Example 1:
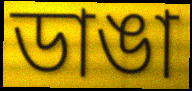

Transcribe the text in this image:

ডাঙা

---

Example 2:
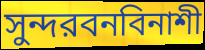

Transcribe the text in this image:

সুন্দরবনবিনাশী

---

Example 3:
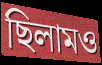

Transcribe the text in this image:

ছিলামও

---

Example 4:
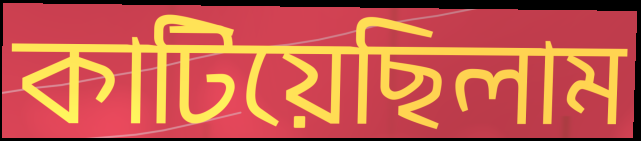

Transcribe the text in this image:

কাটিয়েছিলাম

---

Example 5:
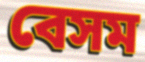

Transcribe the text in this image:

বেসম